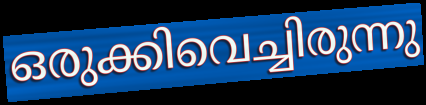
ഒരുക്കിവെച്ചിരുന്നു